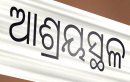
ଆଶ୍ରୟସ୍ଥଳ